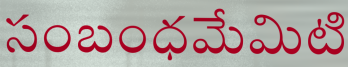
సంబంధమేమిటి